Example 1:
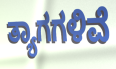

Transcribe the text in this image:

ತ್ಯಾಗಗಳಿವೆ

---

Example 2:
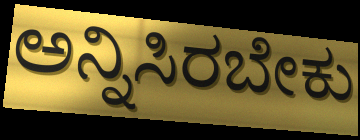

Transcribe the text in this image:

ಅನ್ನಿಸಿರಬೇಕು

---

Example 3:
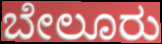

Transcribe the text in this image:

ಬೇಲೂರು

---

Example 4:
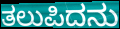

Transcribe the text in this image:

ತಲುಪಿದನು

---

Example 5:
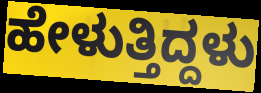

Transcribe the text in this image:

ಹೇಳುತ್ತಿದ್ದಳು